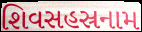
શિવસહસ્રનામ